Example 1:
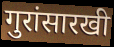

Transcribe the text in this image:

गुरांसारखी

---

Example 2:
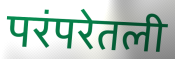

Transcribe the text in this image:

परंपरेतली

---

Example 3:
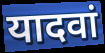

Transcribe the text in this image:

यादवां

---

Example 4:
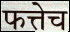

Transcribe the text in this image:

फत्तेच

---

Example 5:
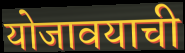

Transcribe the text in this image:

योजावयाची